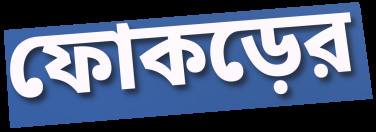
ফোকড়ের